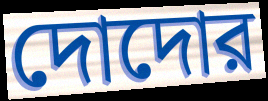
দোদোর